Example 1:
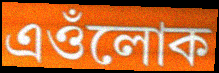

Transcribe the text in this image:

এওঁলোক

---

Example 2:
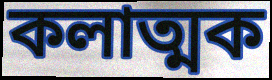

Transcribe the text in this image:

কলাত্মক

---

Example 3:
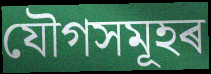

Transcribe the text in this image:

যৌগসমূহৰ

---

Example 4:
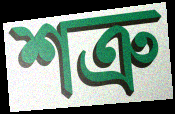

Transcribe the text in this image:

শত্ৰু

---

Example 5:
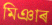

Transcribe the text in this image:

মিঞাৰ